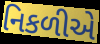
નિકળીએ